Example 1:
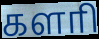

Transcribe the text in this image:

களரி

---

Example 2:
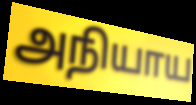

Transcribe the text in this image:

அநியாய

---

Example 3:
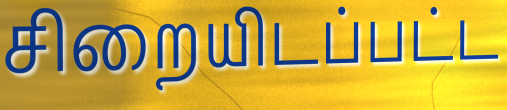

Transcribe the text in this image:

சிறையிடப்பட்ட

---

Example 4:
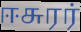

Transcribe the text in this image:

ஈசுரர்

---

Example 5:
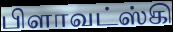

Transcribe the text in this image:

பிளாவட்ஸ்கி